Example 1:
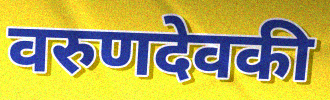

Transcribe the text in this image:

वरुणदेवकी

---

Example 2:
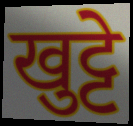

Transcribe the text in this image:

खुट्टे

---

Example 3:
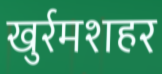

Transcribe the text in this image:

खुर्रमशहर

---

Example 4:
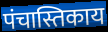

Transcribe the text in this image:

पंचास्तिकाय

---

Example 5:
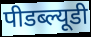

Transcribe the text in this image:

पीडब्ल्यूडी